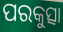
ପରକୁତ୍ସା